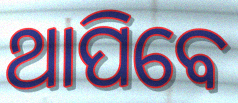
ଥାପିବେ